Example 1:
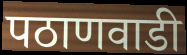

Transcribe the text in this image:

पठाणवाडी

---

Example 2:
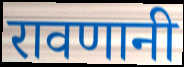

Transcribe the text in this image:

रावणानी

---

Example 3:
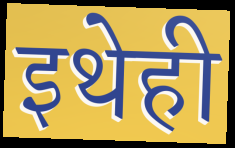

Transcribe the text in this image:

इथेही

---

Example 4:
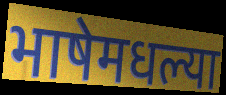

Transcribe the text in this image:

भाषेमधल्या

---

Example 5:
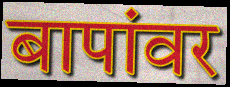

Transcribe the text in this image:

बापांवर